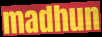
madhun